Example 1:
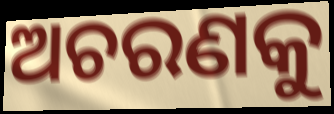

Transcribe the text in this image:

ଅଚରଣକୁ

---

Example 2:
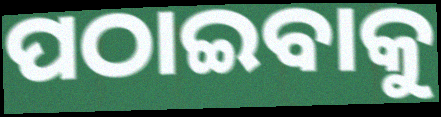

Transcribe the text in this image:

ପଠାଇବାକୁ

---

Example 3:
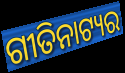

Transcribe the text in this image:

ଗୀତିନାଟ୍ୟର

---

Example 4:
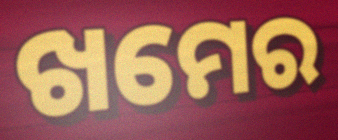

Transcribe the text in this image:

ଖମେର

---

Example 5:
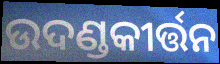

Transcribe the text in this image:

ଉଦଣ୍ଡକୀର୍ତ୍ତନ